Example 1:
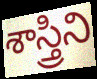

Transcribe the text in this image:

శాస్త్రిని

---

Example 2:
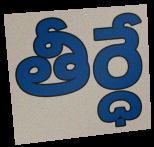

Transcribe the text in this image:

తీర్ధే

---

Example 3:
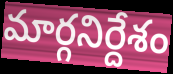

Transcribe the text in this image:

మార్గనిర్దేశం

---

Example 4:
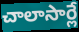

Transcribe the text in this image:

చాలాసార్లే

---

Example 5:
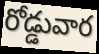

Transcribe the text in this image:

రోడ్డువార